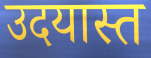
उदयास्त